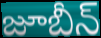
జూబీన్